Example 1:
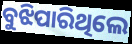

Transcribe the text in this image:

ବୁଝିପାରିଥିଲେ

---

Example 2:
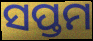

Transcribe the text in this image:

ସପ୍ତମ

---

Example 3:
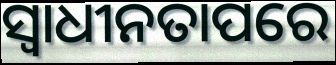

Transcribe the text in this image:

ସ୍ୱାଧୀନତାପରେ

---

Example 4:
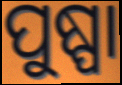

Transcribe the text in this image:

ପୁଷ୍ପା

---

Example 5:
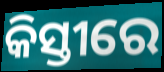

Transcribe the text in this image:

କିସ୍ତୀରେ